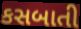
કસબાતી